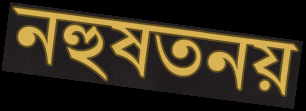
নহুষতনয়